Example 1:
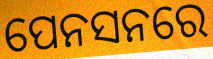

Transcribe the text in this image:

ପେନସନରେ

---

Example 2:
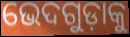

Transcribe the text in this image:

ଭେଦଗୁଡ଼ାକୁ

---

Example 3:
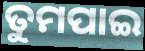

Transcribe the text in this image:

ତୁମପାଇ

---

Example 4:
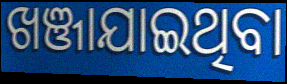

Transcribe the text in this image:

ଖଞ୍ଜାଯାଇଥିବା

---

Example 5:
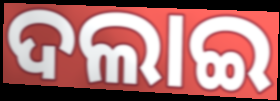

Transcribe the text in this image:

ଦଲାଇ